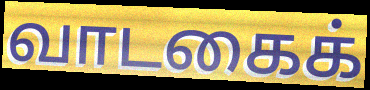
வாடகைக்